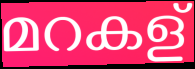
മറകള്